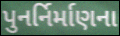
પુનર્નિર્માણના